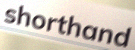
shorthand